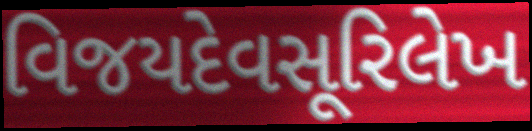
વિજયદેવસૂરિલેખ